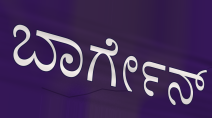
ಬಾರ್ಗೇನ್